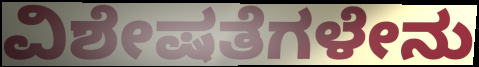
ವಿಶೇಷತೆಗಳೇನು